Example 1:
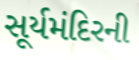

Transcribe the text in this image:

સૂર્યમંદિરની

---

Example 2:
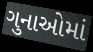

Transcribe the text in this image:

ગુનાઓમાં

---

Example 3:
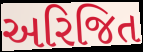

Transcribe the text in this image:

અરિજિત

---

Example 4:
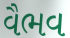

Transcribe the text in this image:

વૈભવ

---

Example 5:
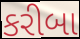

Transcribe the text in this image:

કરીબા